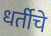
धर्तीचे